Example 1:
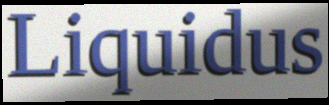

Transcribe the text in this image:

Liquidus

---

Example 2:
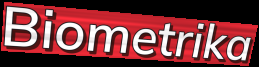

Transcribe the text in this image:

Biometrika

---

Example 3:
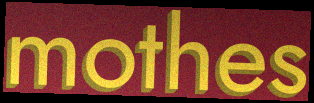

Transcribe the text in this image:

mothes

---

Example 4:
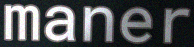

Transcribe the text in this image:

maner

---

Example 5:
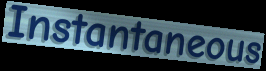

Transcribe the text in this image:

Instantaneous